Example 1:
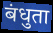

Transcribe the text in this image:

बंधुता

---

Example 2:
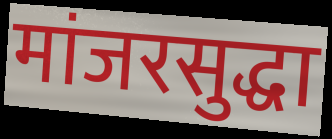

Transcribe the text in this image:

मांजरसुद्धा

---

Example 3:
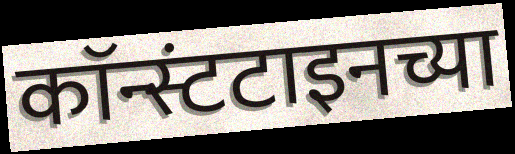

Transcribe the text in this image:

कॉन्स्टंटाइनच्या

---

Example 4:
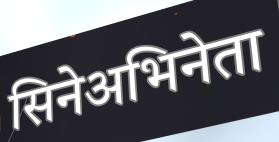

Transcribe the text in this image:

सिनेअभिनेता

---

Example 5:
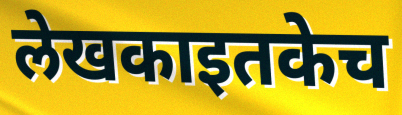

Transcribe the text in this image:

लेखकाइतकेच